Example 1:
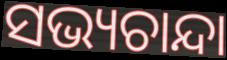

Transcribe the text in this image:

ସଭ୍ୟଚାନ୍ଦା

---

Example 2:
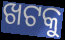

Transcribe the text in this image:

ଖଟକୁ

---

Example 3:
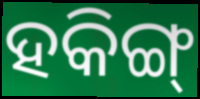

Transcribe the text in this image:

ହକିଙ୍ଗ୍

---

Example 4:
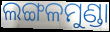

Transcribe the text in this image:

ଲଙ୍ଗଳମୁଣ୍ଡା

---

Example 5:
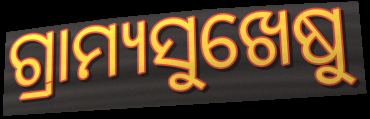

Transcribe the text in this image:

ଗ୍ରାମ୍ୟସୁଖେଷୁ